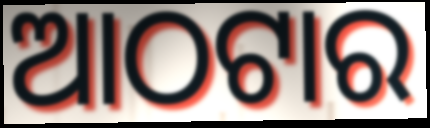
ଆଠଟାର